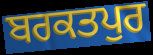
ਬਰਕਤਪੁਰ